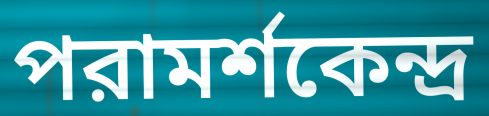
পরামর্শকেন্দ্র